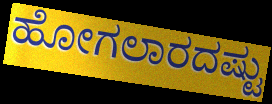
ಹೋಗಲಾರದಷ್ಟು